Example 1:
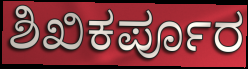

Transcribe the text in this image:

ಶಿಖಿಕರ್ಪೂರ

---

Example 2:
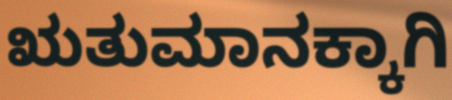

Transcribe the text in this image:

ಋತುಮಾನಕ್ಕಾಗಿ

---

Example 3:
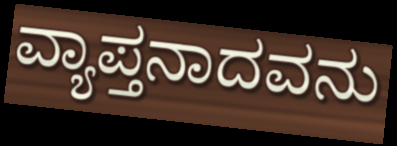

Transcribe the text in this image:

ವ್ಯಾಪ್ತನಾದವನು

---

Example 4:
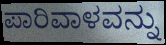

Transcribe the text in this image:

ಪಾರಿವಾಳವನ್ನು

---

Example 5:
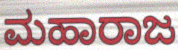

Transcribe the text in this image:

ಮಹಾರಾಜ